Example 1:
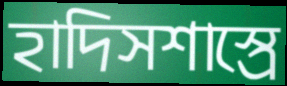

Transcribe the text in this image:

হাদিসশাস্ত্রে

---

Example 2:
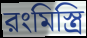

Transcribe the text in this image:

রংমিস্ত্রি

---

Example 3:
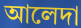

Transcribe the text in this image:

আলেদা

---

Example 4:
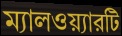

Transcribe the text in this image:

ম্যালওয়্যারটি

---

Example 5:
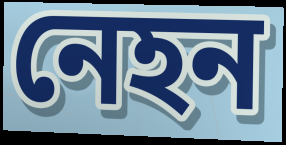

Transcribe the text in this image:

নেহন